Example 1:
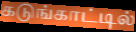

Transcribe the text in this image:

கடுங்காட்டில்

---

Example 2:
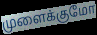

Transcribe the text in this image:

முளைக்குமோ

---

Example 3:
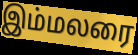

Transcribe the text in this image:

இம்மலரை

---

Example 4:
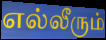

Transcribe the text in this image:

எல்லீரும்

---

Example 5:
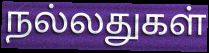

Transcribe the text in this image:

நல்லதுகள்